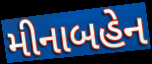
મીનાબહેન